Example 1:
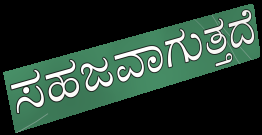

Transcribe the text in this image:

ಸಹಜವಾಗುತ್ತದೆ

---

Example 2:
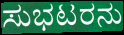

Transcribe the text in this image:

ಸುಭಟರನು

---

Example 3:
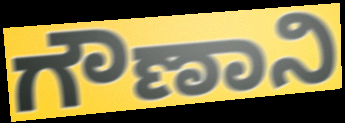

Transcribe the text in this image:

ಗೌಣಾನಿ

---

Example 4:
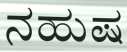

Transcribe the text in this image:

ನಹುಷ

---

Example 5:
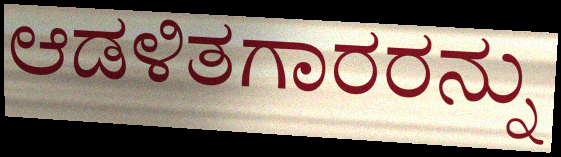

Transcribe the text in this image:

ಆಡಳಿತಗಾರರನ್ನು